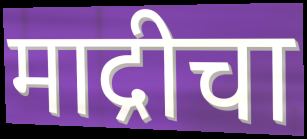
माद्रीचा